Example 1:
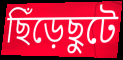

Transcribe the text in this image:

ছিঁড়েছুটে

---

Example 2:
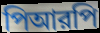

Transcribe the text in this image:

পিআরপি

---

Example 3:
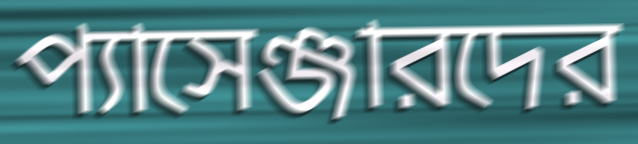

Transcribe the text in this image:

প্যাসেঞ্জারদের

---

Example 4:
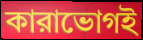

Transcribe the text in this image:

কারাভোগই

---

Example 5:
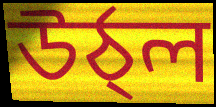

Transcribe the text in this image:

উঠ্ল